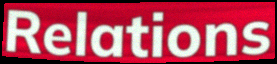
Relations